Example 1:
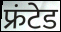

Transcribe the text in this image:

फ्रंटेड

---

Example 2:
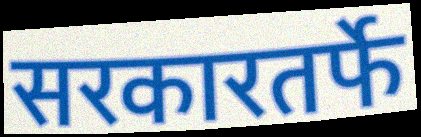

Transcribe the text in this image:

सरकारतर्फे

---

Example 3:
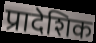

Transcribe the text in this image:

प्रादेशिक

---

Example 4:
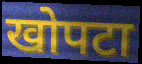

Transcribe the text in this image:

खोपटा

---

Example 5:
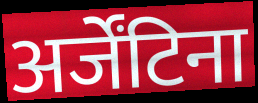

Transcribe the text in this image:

अर्जेंटिना